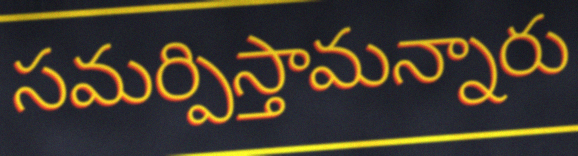
సమర్పిస్తామన్నారు